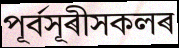
পূৰ্বসূৰীসকলৰ